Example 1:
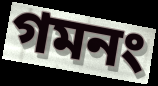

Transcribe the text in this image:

গমনং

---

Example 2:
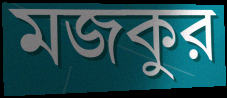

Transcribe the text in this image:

মজকুর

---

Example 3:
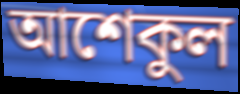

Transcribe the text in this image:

আশেকুল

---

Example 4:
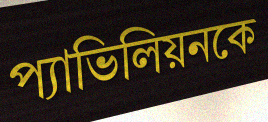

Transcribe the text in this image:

প্যাভিলিয়নকে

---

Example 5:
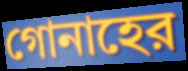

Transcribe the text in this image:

গোনাহের